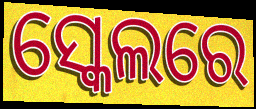
ସ୍କେଲରେ